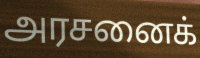
அரசனைக்